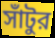
সাঁটুর